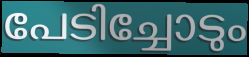
പേടിച്ചോടും